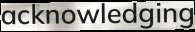
acknowledging